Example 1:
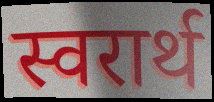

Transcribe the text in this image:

स्वरार्थ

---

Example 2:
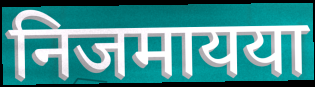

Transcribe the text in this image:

निजमायया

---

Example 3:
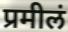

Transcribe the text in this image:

प्रमीलं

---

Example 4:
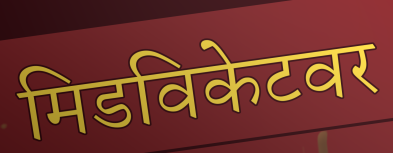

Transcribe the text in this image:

मिडविकेटवर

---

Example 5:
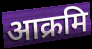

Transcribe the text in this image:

आक्रमि